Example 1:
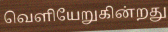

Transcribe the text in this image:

வெளியேறுகின்றது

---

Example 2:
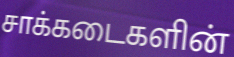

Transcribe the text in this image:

சாக்கடைகளின்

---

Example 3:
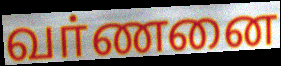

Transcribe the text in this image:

வர்ணனை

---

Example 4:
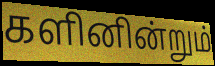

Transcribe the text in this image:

களினின்றும்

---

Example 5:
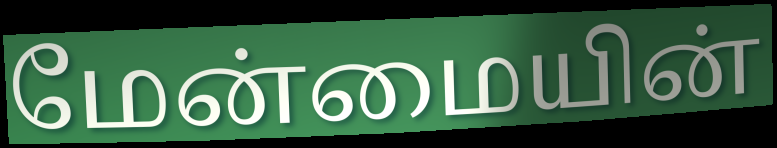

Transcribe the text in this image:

மேன்மையின்